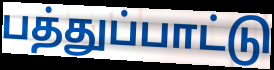
பத்துப்பாட்டு